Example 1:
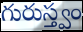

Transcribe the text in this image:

గురుస్త్వం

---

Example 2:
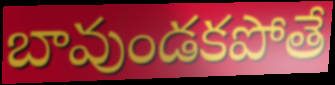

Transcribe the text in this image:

బావుండకపోతే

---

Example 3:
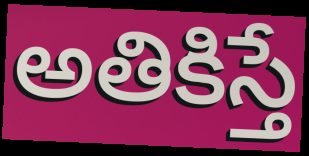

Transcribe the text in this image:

అతికిస్తే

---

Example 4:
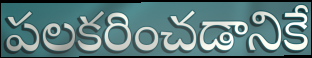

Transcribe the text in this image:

పలకరించడానికే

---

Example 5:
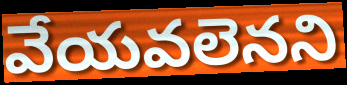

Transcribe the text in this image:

వేయవలెనని